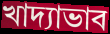
খাদ্যাভাব